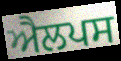
ਐਲਪਸ